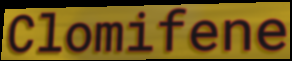
Clomifene